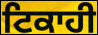
ਟਿਕਾਹੀ